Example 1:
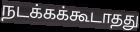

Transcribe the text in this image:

நடக்கக்கூடாதது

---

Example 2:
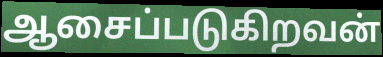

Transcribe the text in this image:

ஆசைப்படுகிறவன்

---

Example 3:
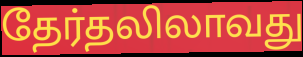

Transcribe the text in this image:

தேர்தலிலாவது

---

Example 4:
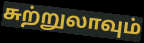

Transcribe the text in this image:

சுற்றுலாவும்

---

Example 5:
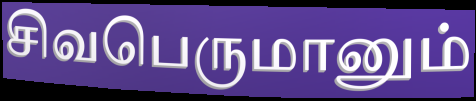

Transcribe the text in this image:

சிவபெருமானும்